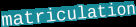
matriculation